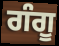
ਗੰਗੂ